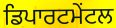
ਡਿਪਾਰਟਮੇਂਟਲ